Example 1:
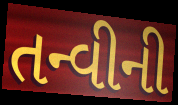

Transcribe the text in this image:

તન્વીની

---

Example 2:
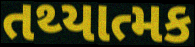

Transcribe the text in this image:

તથ્યાત્મક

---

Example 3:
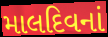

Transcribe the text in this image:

માલદિવનાં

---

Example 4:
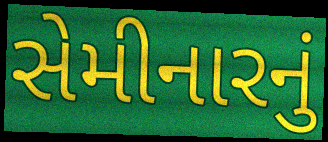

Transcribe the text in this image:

સેમીનારનું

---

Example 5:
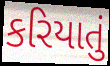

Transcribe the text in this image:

કરિયાતું